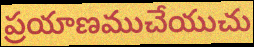
ప్రయాణముచేయుచు